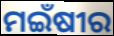
ମଇଁଷୀର